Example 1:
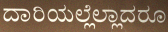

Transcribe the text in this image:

ದಾರಿಯಲ್ಲೆಲ್ಲಾದರೂ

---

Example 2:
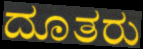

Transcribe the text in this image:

ದೂತರು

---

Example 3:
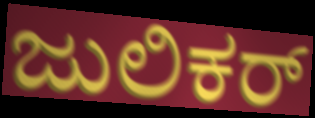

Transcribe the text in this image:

ಜುಲಿಕರ್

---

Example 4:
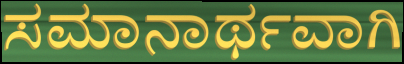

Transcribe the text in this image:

ಸಮಾನಾರ್ಥವಾಗಿ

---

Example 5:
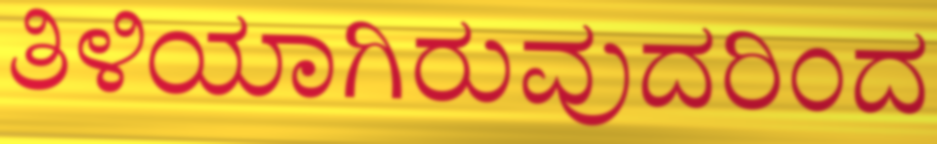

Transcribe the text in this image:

ತಿಳಿಯಾಗಿರುವುದರಿಂದ